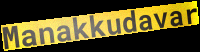
Manakkudavar